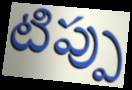
టిప్పు